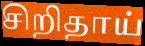
சிறிதாய்